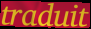
traduit